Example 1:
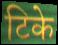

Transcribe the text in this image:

टिके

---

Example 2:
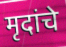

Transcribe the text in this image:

मृदांचे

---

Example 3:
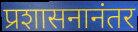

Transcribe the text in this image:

प्रशासनानंतर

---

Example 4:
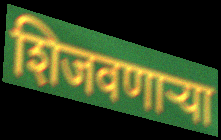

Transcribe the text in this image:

शिजवणाऱ्या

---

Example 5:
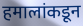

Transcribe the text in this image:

हमालांकडून